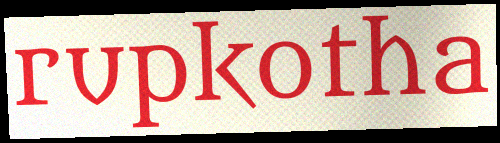
rupkotha